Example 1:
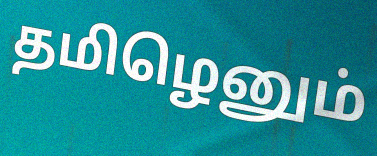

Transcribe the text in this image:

தமிழெனும்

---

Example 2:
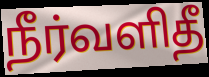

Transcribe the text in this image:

நீர்வளிதீ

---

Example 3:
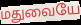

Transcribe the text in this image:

மதுவையே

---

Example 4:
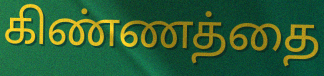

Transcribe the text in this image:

கிண்ணத்தை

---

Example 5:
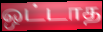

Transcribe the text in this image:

ஒட்டாத